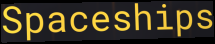
Spaceships